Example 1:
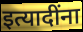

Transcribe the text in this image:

इत्यादींना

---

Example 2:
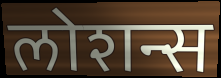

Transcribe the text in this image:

लोशन्स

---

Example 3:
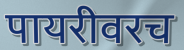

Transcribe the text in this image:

पायरीवरच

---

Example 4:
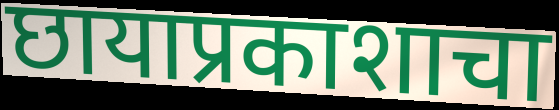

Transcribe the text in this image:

छायाप्रकाशाचा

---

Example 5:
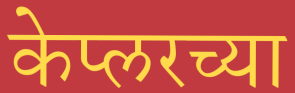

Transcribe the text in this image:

केप्लरच्या